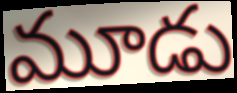
మూడు